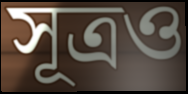
সূত্ৰও